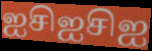
ஐசிஐசிஐ